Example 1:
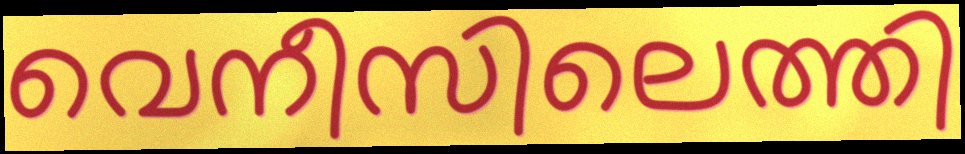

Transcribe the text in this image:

വെനീസിലെത്തി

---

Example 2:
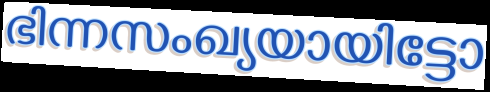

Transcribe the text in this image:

ഭിന്നസംഖ്യയായിട്ടോ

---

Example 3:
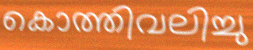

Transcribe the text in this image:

കൊത്തിവലിച്ചു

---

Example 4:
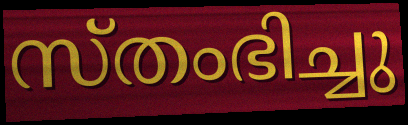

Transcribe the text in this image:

സ്തംഭിച്ചു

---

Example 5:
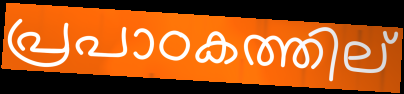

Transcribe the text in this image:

പ്രപാഠകത്തില്